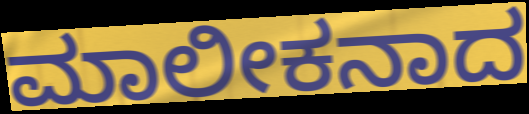
ಮಾಲೀಕನಾದ